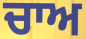
ਚਾਅ